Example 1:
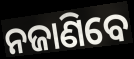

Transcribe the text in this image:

ନଜାଣିବେ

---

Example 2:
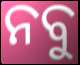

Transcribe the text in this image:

ନବୁ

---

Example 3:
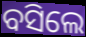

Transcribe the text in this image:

ବସିଲେ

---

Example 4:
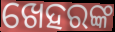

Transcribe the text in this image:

ଖେହରଙ୍କ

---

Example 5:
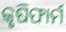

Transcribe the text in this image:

କୃଷିଫାର୍ମ